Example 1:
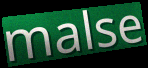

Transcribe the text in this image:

malse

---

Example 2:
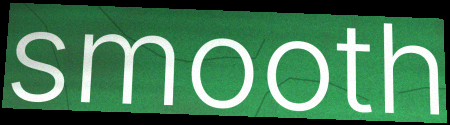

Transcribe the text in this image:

smooth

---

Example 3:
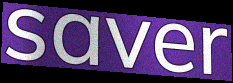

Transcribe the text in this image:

saver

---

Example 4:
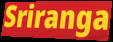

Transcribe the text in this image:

Sriranga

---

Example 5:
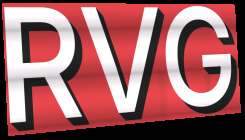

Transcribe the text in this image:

RVG